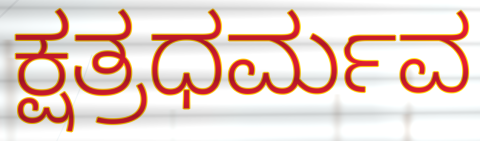
ಕ್ಷತ್ರಧರ್ಮವ